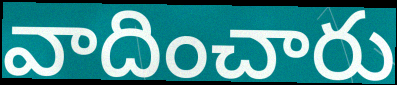
వాదించారు